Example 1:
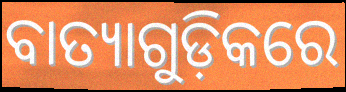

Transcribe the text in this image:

ବାତ୍ୟାଗୁଡ଼ିକରେ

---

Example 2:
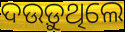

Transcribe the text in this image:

ଦଉଡ଼ୁଥିଲେ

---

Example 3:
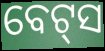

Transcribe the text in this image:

ବେଟ୍‍ସ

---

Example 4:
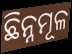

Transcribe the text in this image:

ଛିନ୍ନମୂଳ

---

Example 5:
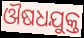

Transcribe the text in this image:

ଔଷଧଯୁକ୍ତ